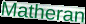
Matheran